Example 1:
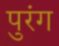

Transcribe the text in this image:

पुरंग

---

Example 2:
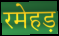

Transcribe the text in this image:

रमेहड़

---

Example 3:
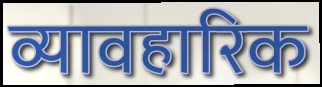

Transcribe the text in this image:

व्यावहारिक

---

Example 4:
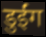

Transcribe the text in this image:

डुईंग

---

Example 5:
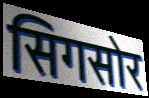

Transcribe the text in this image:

सिगसोर